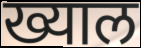
ख्याल